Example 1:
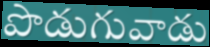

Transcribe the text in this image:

పొడుగువాడు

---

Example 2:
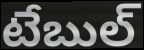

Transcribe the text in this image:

టేబుల్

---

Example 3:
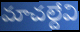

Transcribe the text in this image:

మాచల్దేవి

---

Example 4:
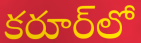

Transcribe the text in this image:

కరూర్‌లో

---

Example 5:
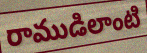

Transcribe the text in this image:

రాముడిలాంటి